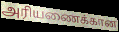
அரியணைக்கான